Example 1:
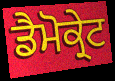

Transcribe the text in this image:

ਡੈਮੋਕ੍ਰੇਟ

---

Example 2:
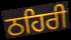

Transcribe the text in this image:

ਠਹਿਰੀ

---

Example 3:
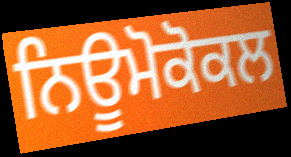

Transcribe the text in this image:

ਨਿਊਮੋਕੋਕਲ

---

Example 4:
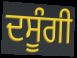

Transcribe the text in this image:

ਦਸੂੰਗੀ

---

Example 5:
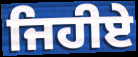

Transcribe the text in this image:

ਜਿਹੀਏ